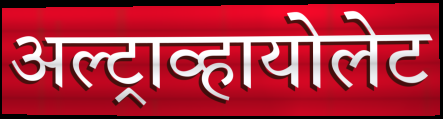
अल्ट्राव्हायोलेट